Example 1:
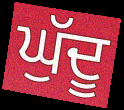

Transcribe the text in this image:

ਘੁੱਦੂ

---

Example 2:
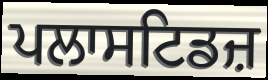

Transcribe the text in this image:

ਪਲਾਸਟਿਡਜ਼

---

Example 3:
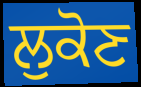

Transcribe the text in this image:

ਲੁਕੋਣ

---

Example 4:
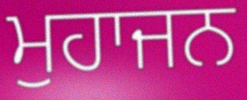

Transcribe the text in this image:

ਮੁਹਾਜਨ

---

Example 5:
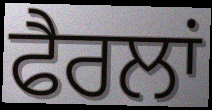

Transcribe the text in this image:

ਫੈਰਲਾਂ